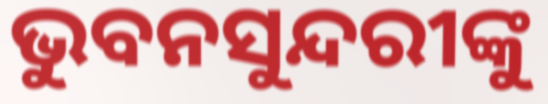
ଭୁବନସୁନ୍ଦରୀଙ୍କୁ